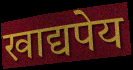
खाद्यपेय